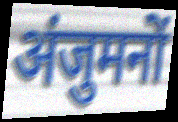
अंजुमनों